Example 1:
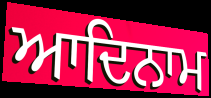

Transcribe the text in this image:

ਆਦਿਨਾਮ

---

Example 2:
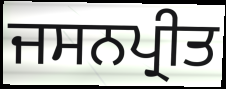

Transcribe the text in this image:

ਜਸਨਪ੍ਰੀਤ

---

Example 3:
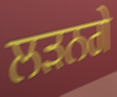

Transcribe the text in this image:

ਲੜਨਗੇ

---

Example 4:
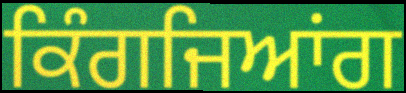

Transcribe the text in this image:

ਕਿੰਗਜਿਆਂਗ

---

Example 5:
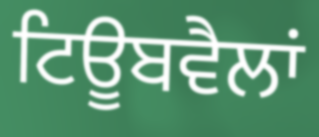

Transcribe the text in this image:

ਟਿਊਬਵੈਲਾਂ